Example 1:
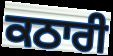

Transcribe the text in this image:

ਕਠਾਰੀ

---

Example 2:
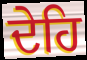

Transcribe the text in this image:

ਦੇਹਿ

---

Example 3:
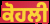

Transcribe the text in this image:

ਕੋਹਲੀ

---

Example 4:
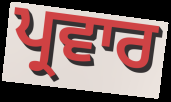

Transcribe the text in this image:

ਪ੍ਰਵਾਰ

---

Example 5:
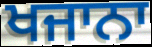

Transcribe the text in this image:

ਖਜਾਨਾ